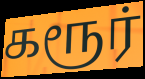
கரூர்